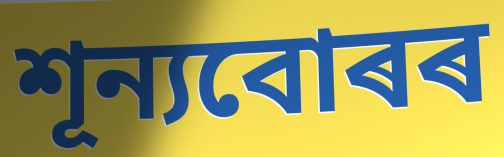
শূন্যবোৰৰ